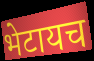
भेटायच